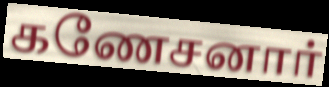
கணேசனார்